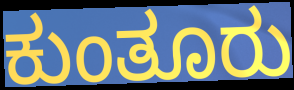
ಕುಂತೂರು